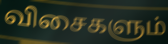
விசைகளும்